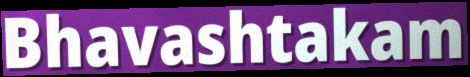
Bhavashtakam